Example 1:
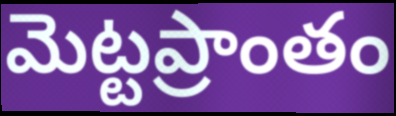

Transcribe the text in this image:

మెట్టప్రాంతం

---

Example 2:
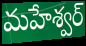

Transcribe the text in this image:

మహేశ్వర్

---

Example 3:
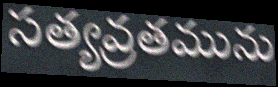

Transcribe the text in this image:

సత్యవ్రతమును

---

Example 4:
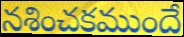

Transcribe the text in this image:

నశించకముందే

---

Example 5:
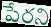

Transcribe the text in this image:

పేరని